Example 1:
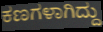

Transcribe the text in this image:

ಕಣಗಳಾಗಿದ್ದು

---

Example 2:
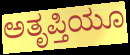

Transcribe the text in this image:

ಅತೃಪ್ತಿಯೂ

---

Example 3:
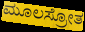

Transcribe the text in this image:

ಮೂಲಸ್ರೋತ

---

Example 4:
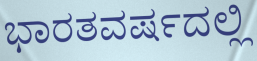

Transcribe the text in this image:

ಭಾರತವರ್ಷದಲ್ಲಿ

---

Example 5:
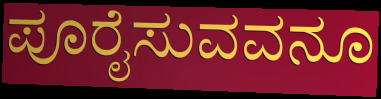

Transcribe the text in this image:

ಪೂರೈಸುವವನೂ